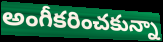
అంగీకరించకున్నా